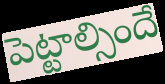
పెట్టాల్సిందే